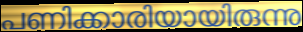
പണിക്കാരിയായിരുന്നു